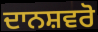
ਦਾਨਸ਼ਵਰੋ